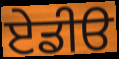
ਏਡੀੳ